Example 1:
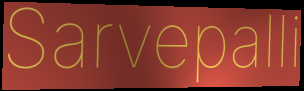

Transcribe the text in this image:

Sarvepalli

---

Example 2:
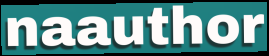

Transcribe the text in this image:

naauthor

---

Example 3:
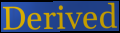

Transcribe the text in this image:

Derived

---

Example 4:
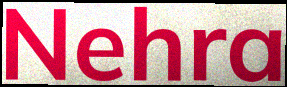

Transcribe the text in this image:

Nehra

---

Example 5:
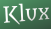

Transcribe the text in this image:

Klux